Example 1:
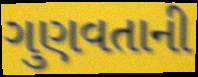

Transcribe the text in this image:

ગુણવતાની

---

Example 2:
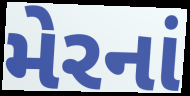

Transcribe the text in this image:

મેરનાં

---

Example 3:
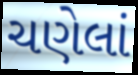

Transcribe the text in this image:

ચણેલાં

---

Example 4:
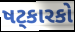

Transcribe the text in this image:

ષટ્કારકો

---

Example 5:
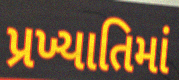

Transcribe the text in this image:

પ્રખ્યાતિમાં